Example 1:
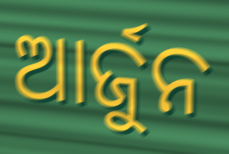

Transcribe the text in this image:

ଆର୍ଜୁନ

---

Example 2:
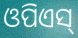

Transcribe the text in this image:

ଓପିଏସ୍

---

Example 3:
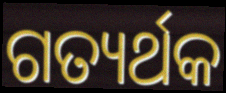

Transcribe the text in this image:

ଗତ୍ୟର୍ଥକ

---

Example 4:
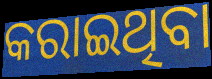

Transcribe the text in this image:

କରାଇଥିବା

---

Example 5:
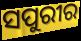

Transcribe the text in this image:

ସପୁରୀର